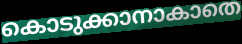
കൊടുക്കാനാകാതെ